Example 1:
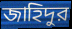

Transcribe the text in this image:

জাহিদুর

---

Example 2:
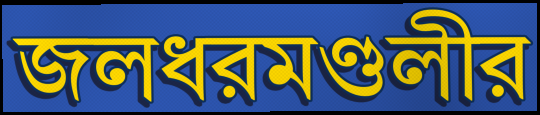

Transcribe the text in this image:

জলধরমণ্ডলীর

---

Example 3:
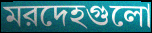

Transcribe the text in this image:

মরদেহগুলো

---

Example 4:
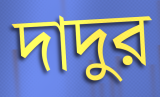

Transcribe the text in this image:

দাদুর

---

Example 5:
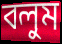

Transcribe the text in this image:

বলুম